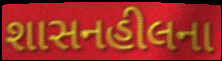
શાસનહીલના